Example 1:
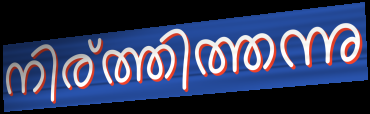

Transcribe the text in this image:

നിര്ത്തിത്തന്നു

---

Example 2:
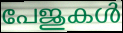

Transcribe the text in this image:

പേജുകൾ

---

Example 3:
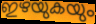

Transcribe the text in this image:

ഇഴയുകയും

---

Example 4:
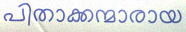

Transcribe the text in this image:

പിതാക്കന്മാരായ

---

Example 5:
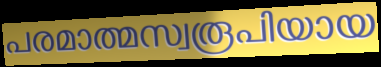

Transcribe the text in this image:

പരമാത്മസ്വരൂപിയായ